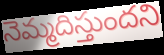
నెమ్మదిస్తుందని